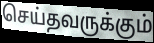
செய்தவருக்கும்